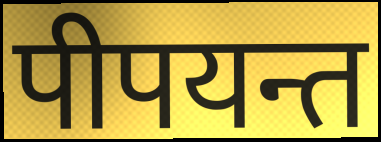
पीपयन्त